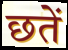
छतें